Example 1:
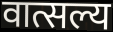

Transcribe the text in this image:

वात्सल्य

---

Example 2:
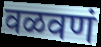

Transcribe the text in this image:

वळवणं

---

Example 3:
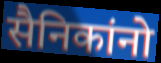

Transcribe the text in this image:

सैनिकांनो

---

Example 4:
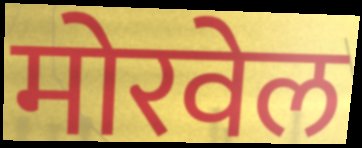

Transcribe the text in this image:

मोरवेल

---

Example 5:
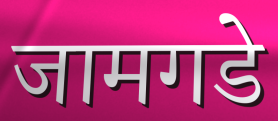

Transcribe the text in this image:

जामगडे